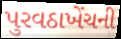
પુરવઠાખેંચની